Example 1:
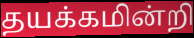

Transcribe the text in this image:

தயக்கமின்றி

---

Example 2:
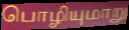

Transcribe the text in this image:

பொழியுமாறு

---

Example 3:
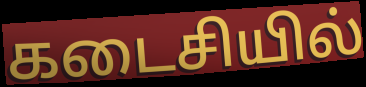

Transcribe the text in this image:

கடைசியில்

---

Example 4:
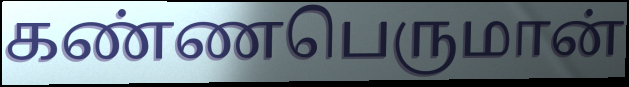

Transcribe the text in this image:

கண்ணபெருமான்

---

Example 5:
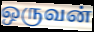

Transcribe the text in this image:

ஒருவன்